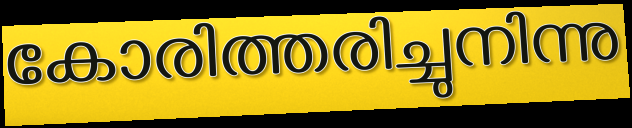
കോരിത്തരിച്ചുനിന്നു